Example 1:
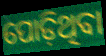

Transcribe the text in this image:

ପୋଡ଼ିଥିବା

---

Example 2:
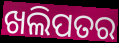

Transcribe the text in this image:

ଖଲିପତର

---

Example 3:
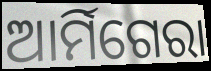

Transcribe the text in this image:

ଆର୍ମିଗେରା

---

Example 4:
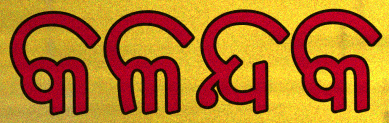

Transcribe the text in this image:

କଳନ୍ଦକ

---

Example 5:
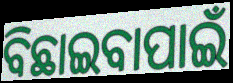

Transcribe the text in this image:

ବିଛାଇବାପାଇଁ